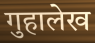
गुहालेख